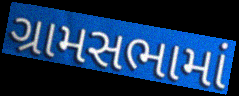
ગ્રામસભામાં